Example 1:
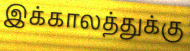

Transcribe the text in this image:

இக்காலத்துக்கு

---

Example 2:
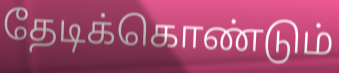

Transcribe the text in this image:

தேடிக்கொண்டும்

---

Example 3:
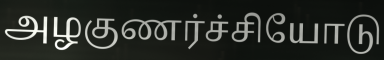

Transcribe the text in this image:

அழகுணர்ச்சியோடு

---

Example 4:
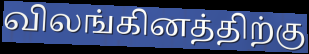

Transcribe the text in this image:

விலங்கினத்திற்கு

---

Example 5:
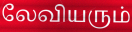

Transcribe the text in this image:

லேவியரும்